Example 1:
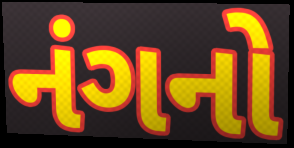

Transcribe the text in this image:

નંગનો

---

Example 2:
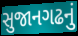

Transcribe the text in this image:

સુજાનગઢનું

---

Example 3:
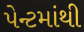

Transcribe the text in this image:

પેન્ટમાંથી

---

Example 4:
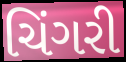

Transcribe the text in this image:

ચિંગરી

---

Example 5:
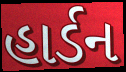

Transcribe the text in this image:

હાર્ડન